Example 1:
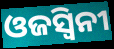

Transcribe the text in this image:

ଓଜସ୍ଵିନୀ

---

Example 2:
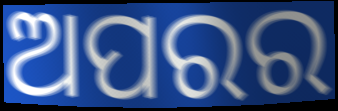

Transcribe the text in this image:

ଅପରର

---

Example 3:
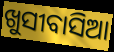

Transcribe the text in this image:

ଖୁସୀବାସିଆ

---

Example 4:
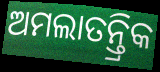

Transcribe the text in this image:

ଅମଲାତନ୍ତ୍ରିକ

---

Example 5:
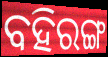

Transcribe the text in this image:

ବହିରଙ୍ଗ